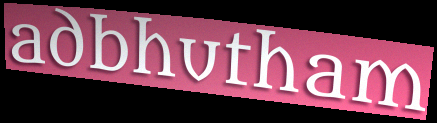
adbhutham